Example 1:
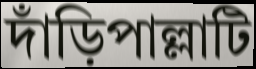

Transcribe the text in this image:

দাঁড়িপাল্লাটি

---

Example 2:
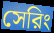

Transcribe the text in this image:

সেরিং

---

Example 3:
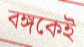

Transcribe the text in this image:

বঙ্গকেই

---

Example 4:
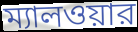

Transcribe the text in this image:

ম্যালওয়ার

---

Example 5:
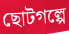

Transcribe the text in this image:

ছোটগল্পে